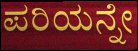
ಪರಿಯನ್ನೇ